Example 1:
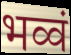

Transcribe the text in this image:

भव्वं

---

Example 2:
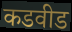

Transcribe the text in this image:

कडवीड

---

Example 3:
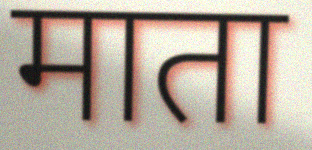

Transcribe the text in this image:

माता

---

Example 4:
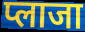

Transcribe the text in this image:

प्लाजा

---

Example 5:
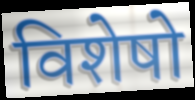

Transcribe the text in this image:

विशेषो